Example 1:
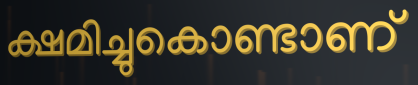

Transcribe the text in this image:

ക്ഷമിച്ചുകൊണ്ടാണ്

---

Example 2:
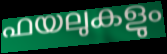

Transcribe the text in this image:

ഫയലുകളും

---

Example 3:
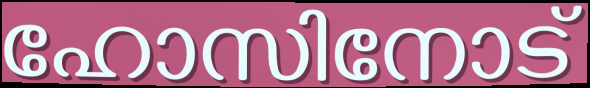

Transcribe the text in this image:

ഹോസിനോട്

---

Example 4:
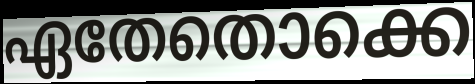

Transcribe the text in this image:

ഏതേതൊക്കെ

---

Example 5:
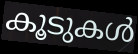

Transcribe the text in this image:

കൂടുകൾ